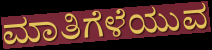
ಮಾತಿಗೆಳೆಯುವ